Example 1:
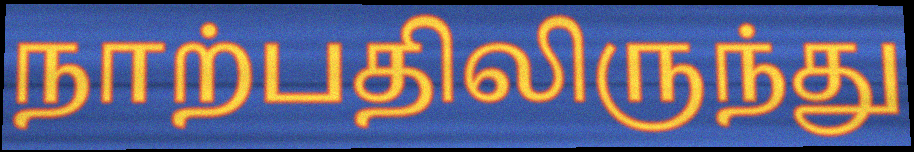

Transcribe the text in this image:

நாற்பதிலிருந்து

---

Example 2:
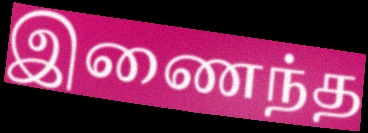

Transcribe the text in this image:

இணைந்த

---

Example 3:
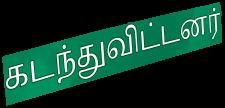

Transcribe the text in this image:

கடந்துவிட்டனர்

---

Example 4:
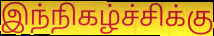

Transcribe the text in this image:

இந்நிகழ்ச்சிக்கு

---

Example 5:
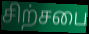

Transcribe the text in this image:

சிற்சபை